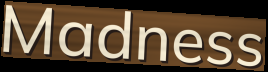
Madness